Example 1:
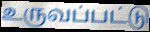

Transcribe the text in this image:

உருவப்பட்டு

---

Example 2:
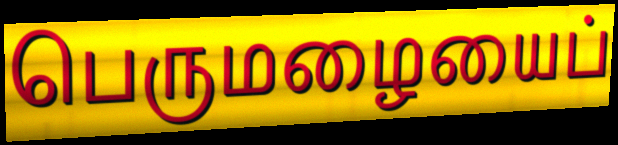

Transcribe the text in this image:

பெருமழையைப்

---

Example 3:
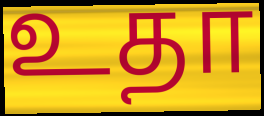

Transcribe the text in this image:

உதா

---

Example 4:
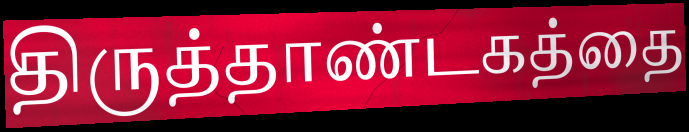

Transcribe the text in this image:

திருத்தாண்டகத்தை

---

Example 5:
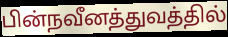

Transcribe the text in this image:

பின்நவீனத்துவத்தில்